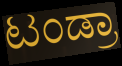
ಟಂಡ್ರಾ